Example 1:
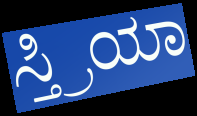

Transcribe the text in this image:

ಸ್ತ್ರಿಯಾ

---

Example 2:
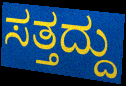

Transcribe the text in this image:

ಸತ್ತದ್ದು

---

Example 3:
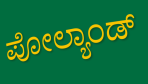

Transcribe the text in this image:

ಪೋಲ್ಯಾಂಡ್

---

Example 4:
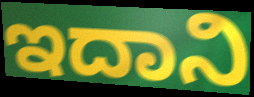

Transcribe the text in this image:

ಇದಾನಿ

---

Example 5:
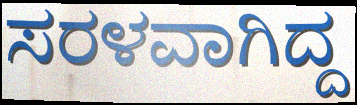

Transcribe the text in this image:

ಸರಳವಾಗಿದ್ದ